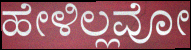
ಹೇಳಿಲ್ಲವೋ